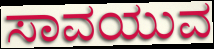
ಸಾವಯುವ